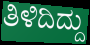
ತಿಳಿದಿದ್ದು